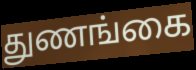
துணங்கை